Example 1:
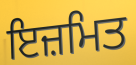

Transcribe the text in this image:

ਇਜ਼ਮਿਤ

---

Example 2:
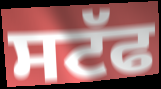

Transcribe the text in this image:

ਸਟੱਫ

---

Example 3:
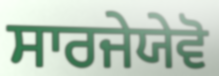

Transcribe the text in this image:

ਸਾਰਜੇਯੇਵੋ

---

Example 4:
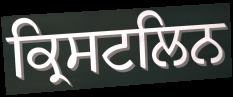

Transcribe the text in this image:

ਕ੍ਰਿਸਟਲਿਨ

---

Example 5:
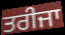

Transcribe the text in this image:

ਤਰੀਜਾ